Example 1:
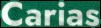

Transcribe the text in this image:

Carias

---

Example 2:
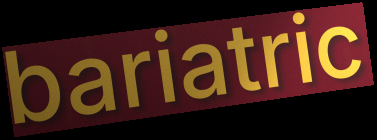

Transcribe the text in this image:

bariatric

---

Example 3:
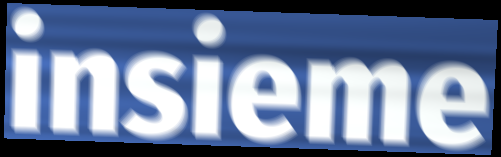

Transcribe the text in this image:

insieme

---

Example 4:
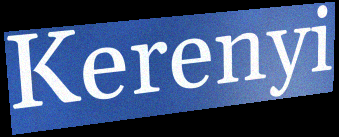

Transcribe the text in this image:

Kerenyi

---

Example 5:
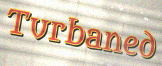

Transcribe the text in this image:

Turbaned